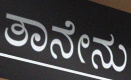
ತಾನೇನು